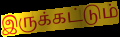
இருக்கட்டும்